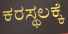
ಕರಸ್ಥಲಕ್ಕೆ